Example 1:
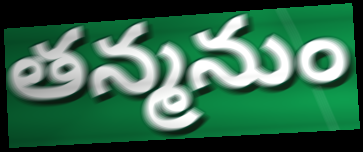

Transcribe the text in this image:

తన్మనుం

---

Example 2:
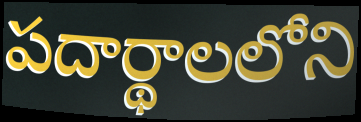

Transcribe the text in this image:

పదార్థాలలోని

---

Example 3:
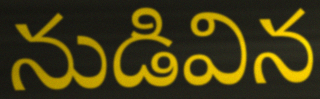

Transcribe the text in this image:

నుడివిన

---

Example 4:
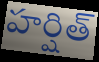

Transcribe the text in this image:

హర్షిత్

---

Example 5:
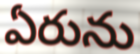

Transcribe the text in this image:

ఏరును